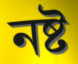
নষ্ট